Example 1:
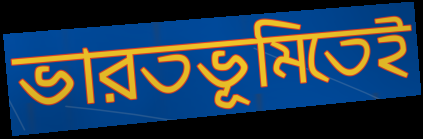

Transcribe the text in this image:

ভারতভূমিতেই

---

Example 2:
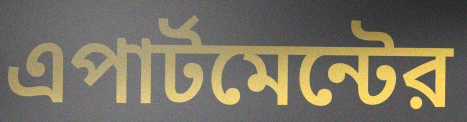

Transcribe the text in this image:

এপার্টমেন্টের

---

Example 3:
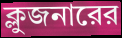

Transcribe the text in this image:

ক্লুজনারের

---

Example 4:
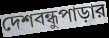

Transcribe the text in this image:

দেশবন্ধুপাড়ার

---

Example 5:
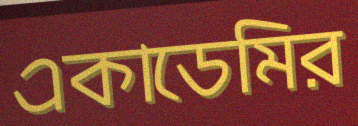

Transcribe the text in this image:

একাডেমির